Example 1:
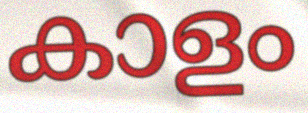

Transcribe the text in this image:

കാളം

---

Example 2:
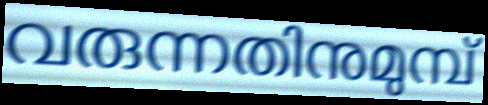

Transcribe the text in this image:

വരുന്നതിനുമുമ്പ്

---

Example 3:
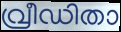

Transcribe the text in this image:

വ്രീഡിതാ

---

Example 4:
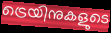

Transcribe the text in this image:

ട്രെയിനുകളുടെ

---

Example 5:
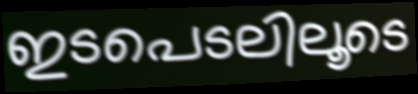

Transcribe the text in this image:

ഇടപെടലിലൂടെ